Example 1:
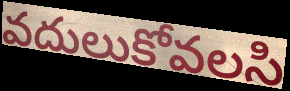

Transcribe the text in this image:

వదులుకోవలసి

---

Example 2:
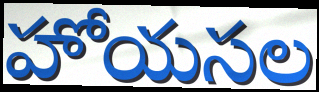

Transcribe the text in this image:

హోయసల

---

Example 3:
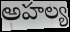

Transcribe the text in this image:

అహల్య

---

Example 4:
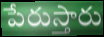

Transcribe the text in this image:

పేరుస్తారు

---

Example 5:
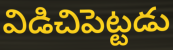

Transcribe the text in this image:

విడిచిపెట్టడు